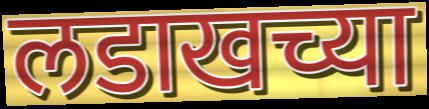
लडाखच्या